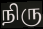
நிரு